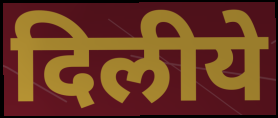
दिलीये